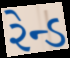
રેન્ડ